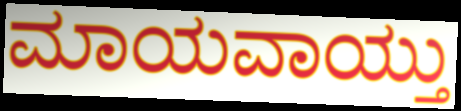
ಮಾಯವಾಯ್ತು